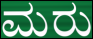
ಮರು